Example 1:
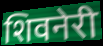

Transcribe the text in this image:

शिवनेरी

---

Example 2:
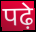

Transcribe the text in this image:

पढ़े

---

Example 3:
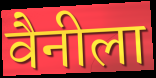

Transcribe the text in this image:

वैनीला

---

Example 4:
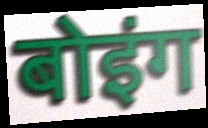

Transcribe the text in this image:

बोइंग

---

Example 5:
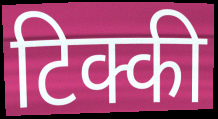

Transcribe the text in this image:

टिक्की